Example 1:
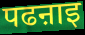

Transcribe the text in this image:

पढऩाइ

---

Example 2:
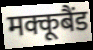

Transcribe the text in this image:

मक्कूबैंड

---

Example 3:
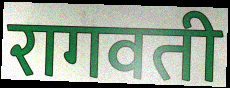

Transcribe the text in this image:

रागवती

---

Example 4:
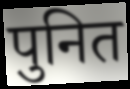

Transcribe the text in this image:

पुनित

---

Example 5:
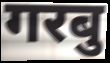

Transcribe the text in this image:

गरबु